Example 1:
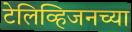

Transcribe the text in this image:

टेलिव्हिजनच्या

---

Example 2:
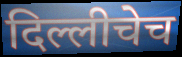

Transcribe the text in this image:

दिल्लीचेच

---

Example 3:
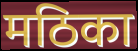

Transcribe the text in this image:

मठिका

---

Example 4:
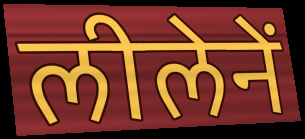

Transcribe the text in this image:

लीलेनें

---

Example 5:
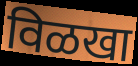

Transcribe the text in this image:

विळखा